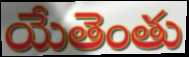
యేతెంతు